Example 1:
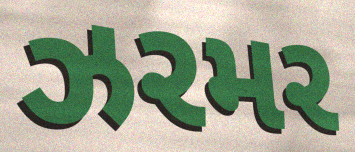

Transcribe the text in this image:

ઝરમર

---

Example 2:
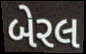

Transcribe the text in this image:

બેરલ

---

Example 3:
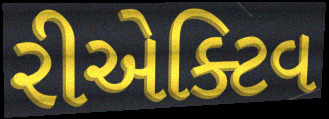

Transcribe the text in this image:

રીએક્ટિવ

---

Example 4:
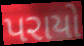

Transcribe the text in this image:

પરાયો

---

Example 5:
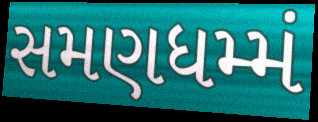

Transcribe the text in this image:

સમણધમ્મં